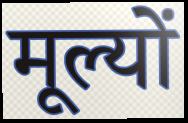
मूल्यों